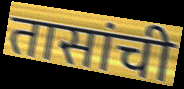
तासांची